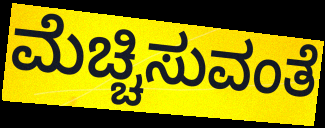
ಮೆಚ್ಚಿಸುವಂತೆ